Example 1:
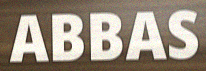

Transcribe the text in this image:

ABBAS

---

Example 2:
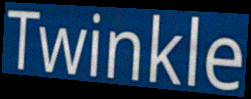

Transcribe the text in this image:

Twinkle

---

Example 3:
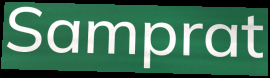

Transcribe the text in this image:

Samprat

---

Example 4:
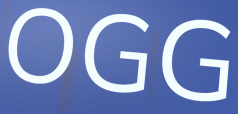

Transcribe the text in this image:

OGG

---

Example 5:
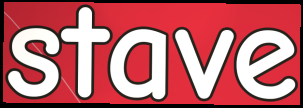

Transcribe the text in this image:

stave